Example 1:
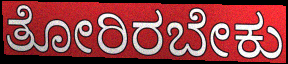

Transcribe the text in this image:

ತೋರಿರಬೇಕು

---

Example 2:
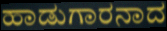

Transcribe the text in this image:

ಹಾಡುಗಾರನಾದ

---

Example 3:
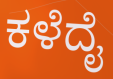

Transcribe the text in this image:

ಕಳೆದೈ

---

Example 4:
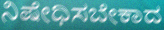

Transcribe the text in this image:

ನಿಷೇಧಿಸಬೇಕಾದ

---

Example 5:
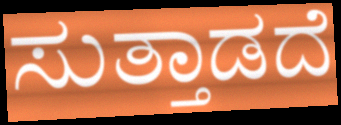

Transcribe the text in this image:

ಸುತ್ತಾಡದೆ